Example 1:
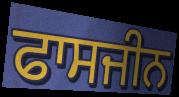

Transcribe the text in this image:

ਫਾਸਜੀਨ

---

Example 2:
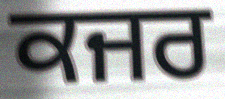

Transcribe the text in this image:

ਕਜਰ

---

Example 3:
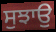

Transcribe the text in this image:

ਸੁਝਾਉ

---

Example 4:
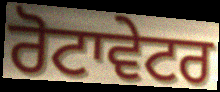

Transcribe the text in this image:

ਰੋਟਾਵੇਟਰ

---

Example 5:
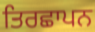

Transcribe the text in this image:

ਤਿਰਛਾਪਨ